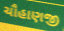
ચૌહાણજી